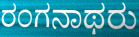
ರಂಗನಾಥರು